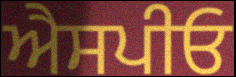
ਐਸਪੀਓ